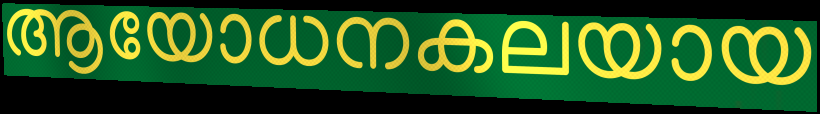
ആയോധനകലയായ